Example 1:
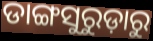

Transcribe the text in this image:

ଡାଙ୍ଗସୁରୁଡ଼ାରୁ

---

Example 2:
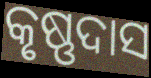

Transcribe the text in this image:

କୃଷ୍ଣଦାସ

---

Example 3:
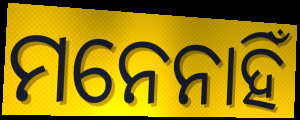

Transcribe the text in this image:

ମନେନାହିଁ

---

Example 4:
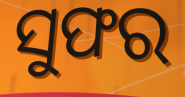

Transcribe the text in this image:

ସୁଫର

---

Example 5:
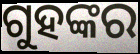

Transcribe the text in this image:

ଗୁହଙ୍କର